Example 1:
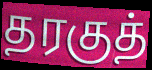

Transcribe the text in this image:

தரகுத்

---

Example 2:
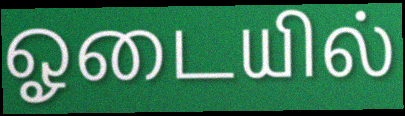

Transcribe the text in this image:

ஓடையில்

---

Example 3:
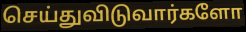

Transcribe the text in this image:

செய்துவிடுவார்களோ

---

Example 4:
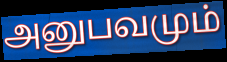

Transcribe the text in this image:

அனுபவமும்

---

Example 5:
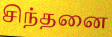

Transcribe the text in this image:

சிந்தனை